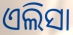
ଏଲିସା